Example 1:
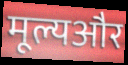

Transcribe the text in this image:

मूल्यऔर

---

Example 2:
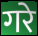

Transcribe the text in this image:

गरे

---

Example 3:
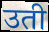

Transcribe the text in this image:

उती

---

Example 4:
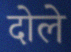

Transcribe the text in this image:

दोले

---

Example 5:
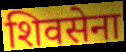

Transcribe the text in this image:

शिवसेना